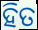
ହିତ